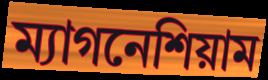
ম্যাগনেশিয়াম